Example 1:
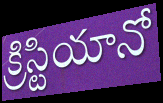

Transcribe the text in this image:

క్రిస్టియానో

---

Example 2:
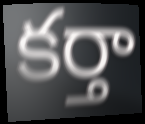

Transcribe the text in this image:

కర్తా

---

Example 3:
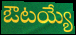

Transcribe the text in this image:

ఔటయ్యే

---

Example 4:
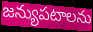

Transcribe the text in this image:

జన్యుపటాలను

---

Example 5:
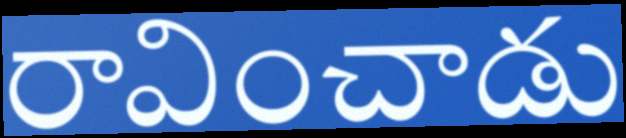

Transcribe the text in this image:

రావించాడు